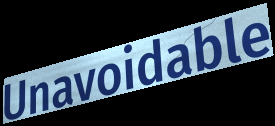
Unavoidable